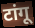
टांगू